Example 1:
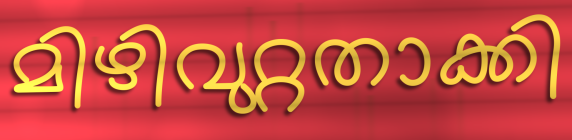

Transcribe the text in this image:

മിഴിവുറ്റതാക്കി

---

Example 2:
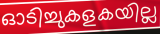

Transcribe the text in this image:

ഓടിച്ചുകളകയില്ല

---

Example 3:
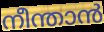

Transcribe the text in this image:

നീന്താൻ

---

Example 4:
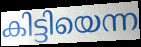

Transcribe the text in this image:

കിട്ടിയെന്ന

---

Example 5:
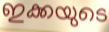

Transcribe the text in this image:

ഇക്കയുടെ